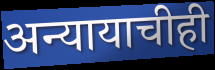
अन्यायाचीही